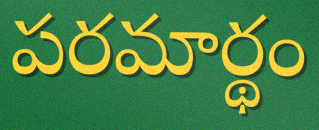
పరమార్థం